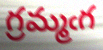
గ్రమ్మఁగ